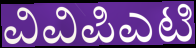
ವಿವಿಪಿಎಟಿ